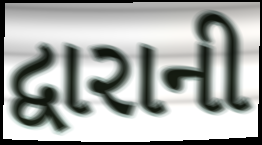
દ્વારાની